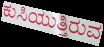
ಕುಸಿಯುತ್ತಿರುವ